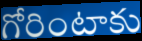
గోరింటాకు